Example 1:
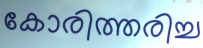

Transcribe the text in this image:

കോരിത്തരിച്ച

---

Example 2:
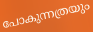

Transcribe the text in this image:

പോകുന്നത്രയും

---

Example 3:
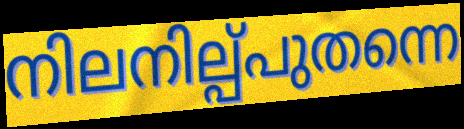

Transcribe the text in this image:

നിലനില്പ്പുതന്നെ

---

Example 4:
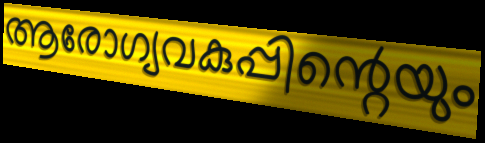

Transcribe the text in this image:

ആരോഗ്യവകുപ്പിന്റെയും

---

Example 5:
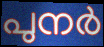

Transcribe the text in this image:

പുനർ